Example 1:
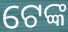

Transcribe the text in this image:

ଟେଙ୍କ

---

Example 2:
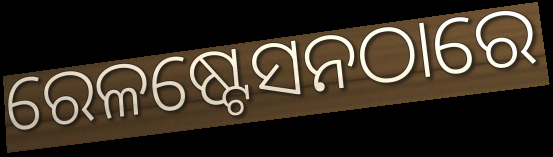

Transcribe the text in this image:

ରେଳଷ୍ଟେସନଠାରେ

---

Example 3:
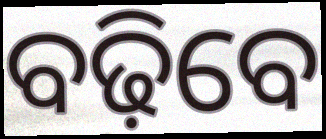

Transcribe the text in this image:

ବଢ଼ିବେ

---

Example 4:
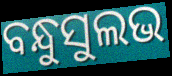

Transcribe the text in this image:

ବନ୍ଧୁସୁଲଭ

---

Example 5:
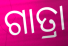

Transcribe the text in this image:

ଗାତ୍ରା